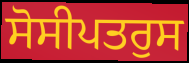
ਸੋਸੀਪਤਰੁਸ